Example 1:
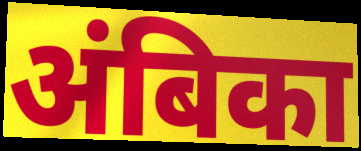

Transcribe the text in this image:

अंबिका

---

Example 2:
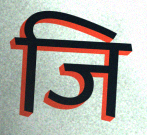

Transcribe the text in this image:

जि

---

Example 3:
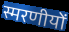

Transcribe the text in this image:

स्मरणीयों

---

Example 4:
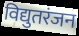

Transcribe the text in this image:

विद्युतरंजन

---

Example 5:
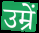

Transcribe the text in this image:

उम्रें